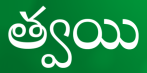
త్వయి